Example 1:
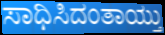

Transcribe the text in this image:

ಸಾಧಿಸಿದಂತಾಯ್ತು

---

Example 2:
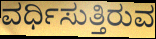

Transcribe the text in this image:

ವರ್ಧಿಸುತ್ತಿರುವ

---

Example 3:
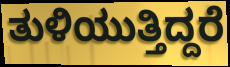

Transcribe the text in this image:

ತುಳಿಯುತ್ತಿದ್ದರೆ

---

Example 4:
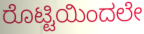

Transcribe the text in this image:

ರೊಟ್ಟಿಯಿಂದಲೇ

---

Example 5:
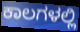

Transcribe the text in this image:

ಕಾಲಗಳಲ್ಲಿ